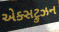
એક્સટ્રુઝન